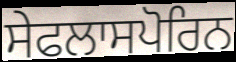
ਸੇਫਲਾਸਪੋਰਿਨ